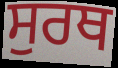
ਸੁਰਥ